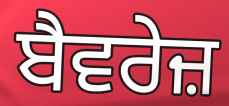
ਬੈਵਰੇਜ਼